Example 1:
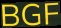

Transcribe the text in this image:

BGF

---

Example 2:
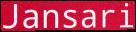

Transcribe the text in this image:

Jansari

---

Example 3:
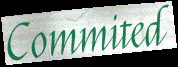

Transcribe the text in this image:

Commited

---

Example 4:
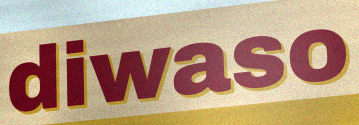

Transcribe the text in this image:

diwaso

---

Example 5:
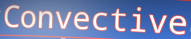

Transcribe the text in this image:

Convective